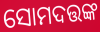
ସୋମଦତ୍ତଙ୍କ